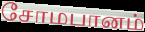
சோமபானம்